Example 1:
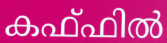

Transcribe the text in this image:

കഫ്ഫിൽ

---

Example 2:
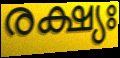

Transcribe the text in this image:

രക്ഷ്യഃ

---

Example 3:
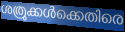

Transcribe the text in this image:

ശത്രുക്കൾക്കെതിരെ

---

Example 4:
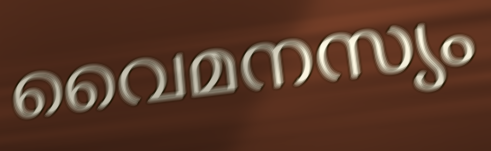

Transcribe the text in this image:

വൈമനസ്യം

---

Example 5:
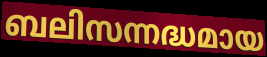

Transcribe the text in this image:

ബലിസന്നദ്ധമായ